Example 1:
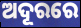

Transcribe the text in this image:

ଅଦୂରରେ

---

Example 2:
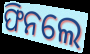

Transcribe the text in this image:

ଫିନଲେ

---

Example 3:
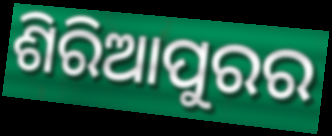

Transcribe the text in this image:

ଶିରିଆପୁରର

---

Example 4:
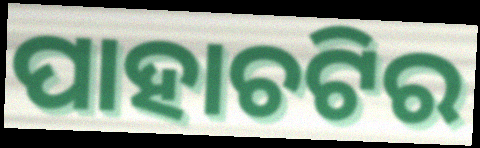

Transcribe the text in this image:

ପାହାଚଟିର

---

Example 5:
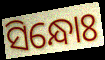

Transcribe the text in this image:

ସିନ୍ଧୋଃ